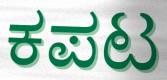
ಕಪಟ